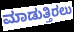
ಮಾಡುತ್ತಿರಲು